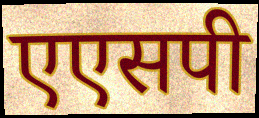
एएसपी